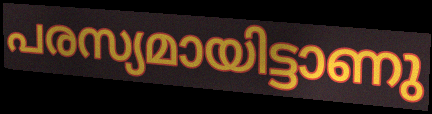
പരസ്യമായിട്ടാണു